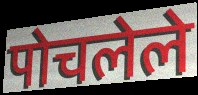
पोचलेले